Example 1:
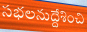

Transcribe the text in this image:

సభలనుద్దేశించి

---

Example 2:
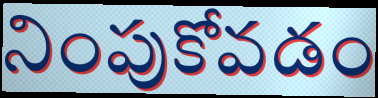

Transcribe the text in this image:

నింపుకోవడం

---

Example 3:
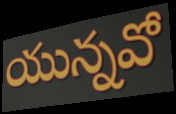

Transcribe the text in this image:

యున్నవో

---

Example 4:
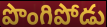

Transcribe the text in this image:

పొంగిపోడు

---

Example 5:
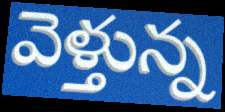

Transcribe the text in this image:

వెళ్తున్న